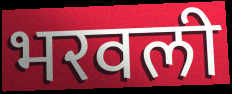
भरवली